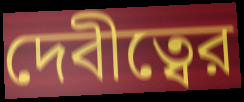
দেবীত্বের